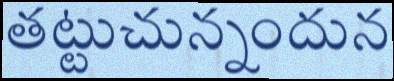
తట్టుచున్నందున